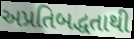
અપ્રતિબદ્ધતાથી